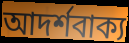
আদর্শবাক্য